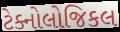
ટેક્નોલોજિકલ